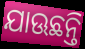
ଯାଊଛନ୍ତି